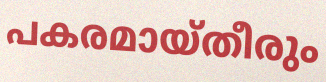
പകരമായ്തീരും